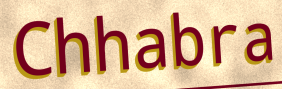
Chhabra